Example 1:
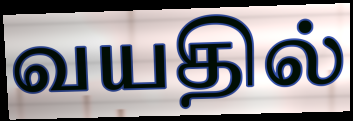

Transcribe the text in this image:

வயதில்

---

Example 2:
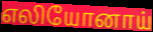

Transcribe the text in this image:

எலியோனாய்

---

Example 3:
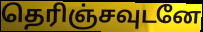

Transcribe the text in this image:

தெரிஞ்சவுடனே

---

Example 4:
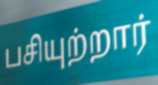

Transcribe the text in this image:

பசியுற்றார்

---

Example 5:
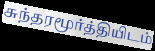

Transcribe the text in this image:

சுந்தரமூர்த்தியிடம்